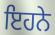
ਇਹਨੇ